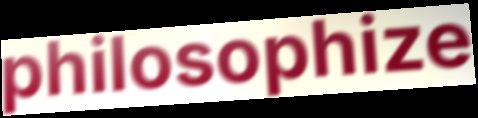
philosophize